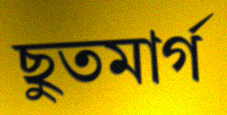
ছুতমার্গ